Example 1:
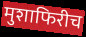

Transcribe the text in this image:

मुशाफिरीच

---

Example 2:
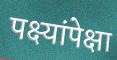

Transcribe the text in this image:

पक्ष्यांपेक्षा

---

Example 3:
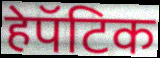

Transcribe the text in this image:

हेपॅटिक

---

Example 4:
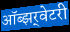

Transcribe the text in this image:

ऑब्झर्वेटरी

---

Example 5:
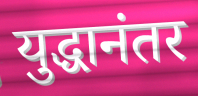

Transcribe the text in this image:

युद्धानंतर